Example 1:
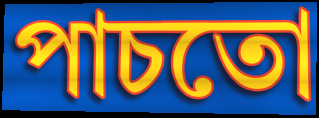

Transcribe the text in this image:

পাচতো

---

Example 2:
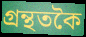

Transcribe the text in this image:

গ্ৰন্থতকৈ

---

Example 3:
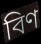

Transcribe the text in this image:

বিণ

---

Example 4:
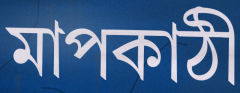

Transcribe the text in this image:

মাপকাঠী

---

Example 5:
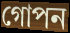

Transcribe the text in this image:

গোপন